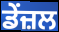
ਡੇਂਜ਼ਲ